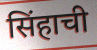
सिंहाची